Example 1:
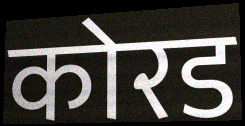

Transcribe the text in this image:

कोरड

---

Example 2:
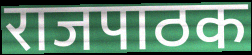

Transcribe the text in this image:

राजपाठक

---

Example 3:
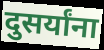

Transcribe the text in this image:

दुसर्यांना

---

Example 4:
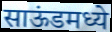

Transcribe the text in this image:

साऊंडमध्ये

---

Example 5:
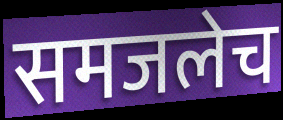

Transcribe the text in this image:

समजलेच